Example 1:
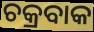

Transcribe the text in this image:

ଚକ୍ରବାକ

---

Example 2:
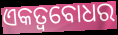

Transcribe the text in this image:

ଏକତ୍ୱବୋଧର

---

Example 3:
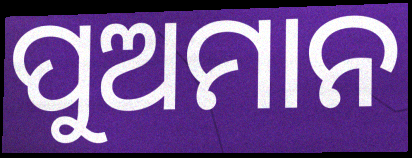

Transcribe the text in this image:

ପୁଅମାନ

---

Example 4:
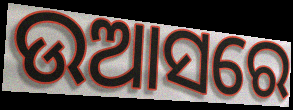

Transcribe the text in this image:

ଉଆସରେ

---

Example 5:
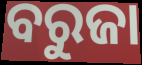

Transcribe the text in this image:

ବରୁଜା